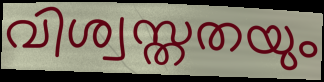
വിശ്വസ്തതയും